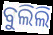
ବୁଲିଲି